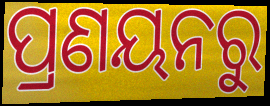
ପ୍ରଣୟନରୁ